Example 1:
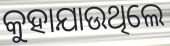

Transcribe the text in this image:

କୁହାଯାଉଥିଲେ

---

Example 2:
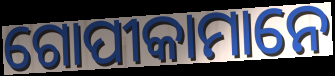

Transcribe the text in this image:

ଗୋପୀକାମାନେ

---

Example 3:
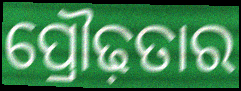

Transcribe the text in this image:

ପ୍ରୌଢ଼ତାର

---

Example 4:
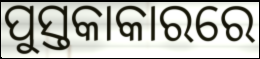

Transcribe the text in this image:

ପୁସ୍ତକାକାରରେ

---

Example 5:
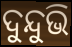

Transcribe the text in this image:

ଦୁନ୍ଦୁଭି